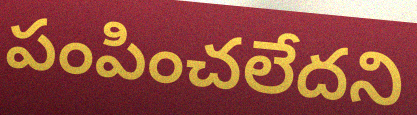
పంపించలేదని